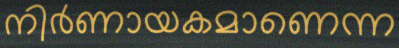
നിർണായകമാണെന്ന